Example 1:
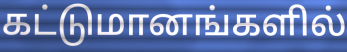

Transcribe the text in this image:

கட்டுமானங்களில்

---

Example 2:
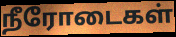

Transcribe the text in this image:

நீரோடைகள்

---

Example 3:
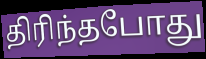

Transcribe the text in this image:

திரிந்தபோது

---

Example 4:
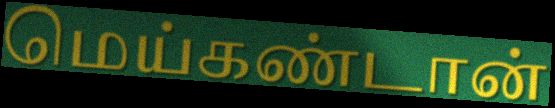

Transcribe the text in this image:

மெய்கண்டான்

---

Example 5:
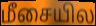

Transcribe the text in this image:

மீசையில